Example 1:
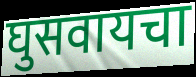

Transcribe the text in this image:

घुसवायचा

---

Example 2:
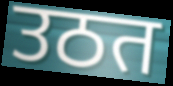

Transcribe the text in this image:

उठत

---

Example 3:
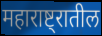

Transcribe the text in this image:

महाराष्ट्रातील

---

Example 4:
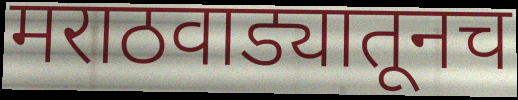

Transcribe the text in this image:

मराठवाड्यातूनच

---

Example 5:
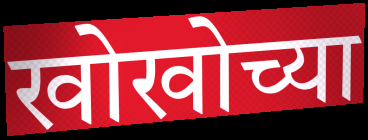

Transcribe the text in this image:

खोखोच्या